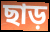
ছাড়